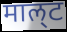
माल्ट